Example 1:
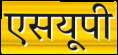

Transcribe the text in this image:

एसयूपी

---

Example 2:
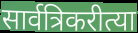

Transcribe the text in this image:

सार्वत्रिकरीत्या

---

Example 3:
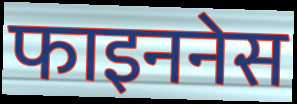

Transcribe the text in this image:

फाइननेस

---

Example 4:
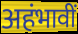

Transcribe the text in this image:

अहंभावीं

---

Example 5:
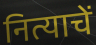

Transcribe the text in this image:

नित्याचें